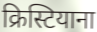
क्रिस्टियाना